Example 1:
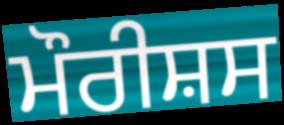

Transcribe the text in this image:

ਮੌਰੀਸ਼ਸ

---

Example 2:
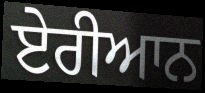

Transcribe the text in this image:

ਏਰੀਆਨ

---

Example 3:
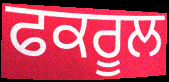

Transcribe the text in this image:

ਫਕਰੂਲ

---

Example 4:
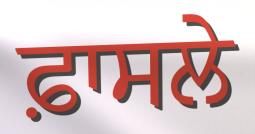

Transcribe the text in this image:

ਫ਼ਾਸਲੇ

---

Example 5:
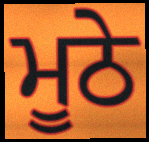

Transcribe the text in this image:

ਮੂਠੇ